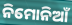
ନିମୋନିଆଁ